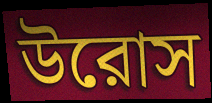
উরোস